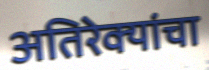
अतिरेक्यांचा